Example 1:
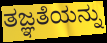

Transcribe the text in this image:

ತಜ್ಞತೆಯನ್ನು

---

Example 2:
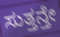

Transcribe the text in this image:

ಸುತ್ತನ್ತೇ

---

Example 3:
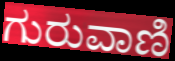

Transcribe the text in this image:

ಗುರುವಾಣಿ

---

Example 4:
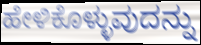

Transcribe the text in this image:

ಹೇಳಿಕೊಳ್ಳುವುದನ್ನು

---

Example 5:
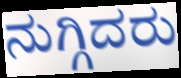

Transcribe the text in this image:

ನುಗ್ಗಿದರು